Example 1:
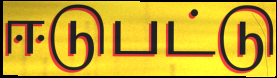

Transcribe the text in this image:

ஈடுபட்டு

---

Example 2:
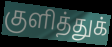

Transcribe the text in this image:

குளித்துக்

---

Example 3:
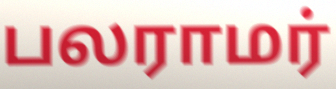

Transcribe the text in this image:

பலராமர்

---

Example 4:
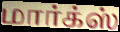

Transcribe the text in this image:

மார்க்ஸ்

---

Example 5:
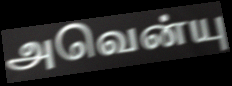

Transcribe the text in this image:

அவென்யு